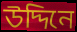
উদ্দিনে